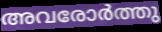
അവരോർത്തു